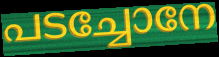
പടച്ചോനേ